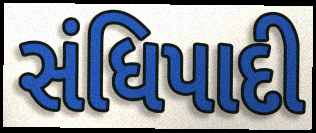
સંધિપાદી